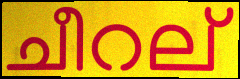
ചീറല്